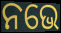
ନଭେ